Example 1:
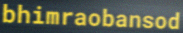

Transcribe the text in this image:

bhimraobansod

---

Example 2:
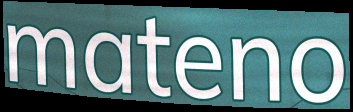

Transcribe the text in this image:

mateno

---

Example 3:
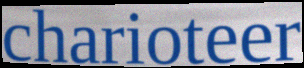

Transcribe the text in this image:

charioteer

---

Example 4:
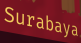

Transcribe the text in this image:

Surabaya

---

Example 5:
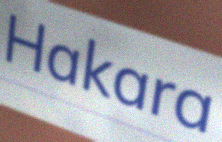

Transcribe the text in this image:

Hakara